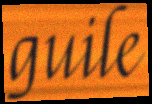
guile